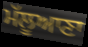
ਮੱਲੂਆਣਾ